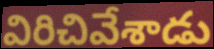
విరిచివేశాడు